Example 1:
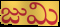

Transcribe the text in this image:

జుమి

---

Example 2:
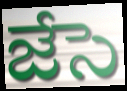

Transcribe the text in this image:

జేసె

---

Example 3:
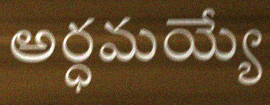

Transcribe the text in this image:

అర్ధమయ్యే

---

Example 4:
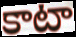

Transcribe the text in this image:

కాటా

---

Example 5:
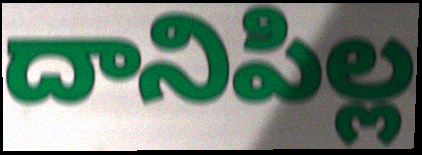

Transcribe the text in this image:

దానిపిల్ల